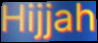
Hijjah